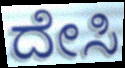
ದೇಸಿ